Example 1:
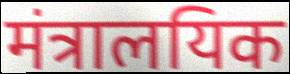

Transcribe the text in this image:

मंत्रालयिक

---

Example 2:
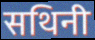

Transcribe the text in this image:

सथिनी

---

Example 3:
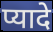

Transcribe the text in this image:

प्यादे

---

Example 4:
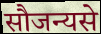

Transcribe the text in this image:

सौजन्यसे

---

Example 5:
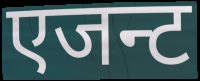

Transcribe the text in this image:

एजन्ट